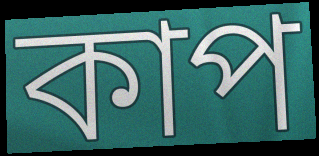
কাপ